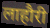
लाहौरी